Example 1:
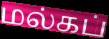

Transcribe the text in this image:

மல்கப்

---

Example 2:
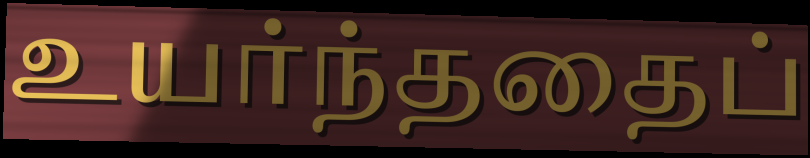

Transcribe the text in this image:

உயர்ந்ததைப்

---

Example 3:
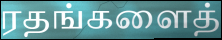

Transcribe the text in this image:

ரதங்களைத்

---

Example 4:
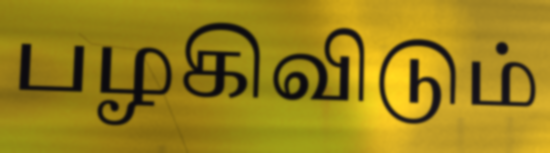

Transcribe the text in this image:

பழகிவிடும்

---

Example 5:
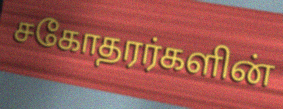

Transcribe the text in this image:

சகோதரர்களின்